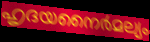
ഹൃദയനൈർമല്യം